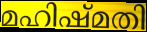
മഹിഷ്മതി